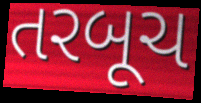
તરબૂચ